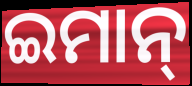
ଇମାନ୍